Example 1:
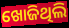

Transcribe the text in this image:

ଖୋଜିଥିଲି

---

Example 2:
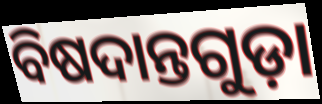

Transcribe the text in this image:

ବିଷଦାନ୍ତଗୁଡ଼ା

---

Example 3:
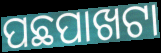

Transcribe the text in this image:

ପଛପାଖଟା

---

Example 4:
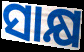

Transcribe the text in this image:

ସାକ୍ଷ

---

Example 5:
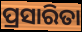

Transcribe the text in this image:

ପ୍ରସାରିତା